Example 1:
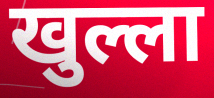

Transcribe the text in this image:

खुल्ला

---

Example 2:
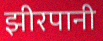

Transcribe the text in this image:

झीरपानी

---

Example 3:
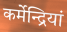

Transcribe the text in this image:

कर्मेन्द्रियां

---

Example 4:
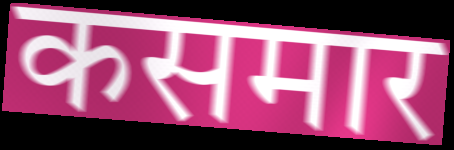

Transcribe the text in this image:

कसमार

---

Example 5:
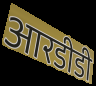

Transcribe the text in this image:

आरडीडी